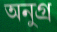
অনুগ্র